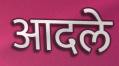
आदले